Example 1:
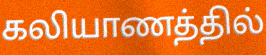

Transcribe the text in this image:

கலியாணத்தில்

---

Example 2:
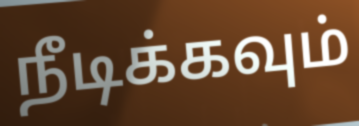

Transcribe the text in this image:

நீடிக்கவும்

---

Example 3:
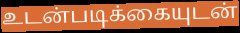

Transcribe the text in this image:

உடன்படிக்கையுடன்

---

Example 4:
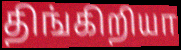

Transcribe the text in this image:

திங்கிறியா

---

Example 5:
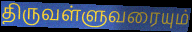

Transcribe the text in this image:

திருவள்ளுவரையும்